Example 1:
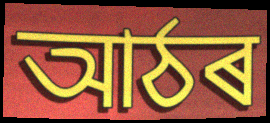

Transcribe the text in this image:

আঠৰ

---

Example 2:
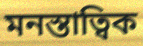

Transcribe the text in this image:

মনস্তাত্বিক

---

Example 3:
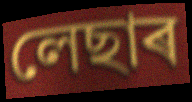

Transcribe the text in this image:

লেছাৰ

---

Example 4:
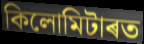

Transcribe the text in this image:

কিলোমিটাৰত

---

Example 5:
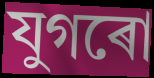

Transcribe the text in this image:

যুগৰো